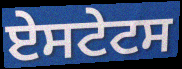
ਏਸਟੇਟਸ